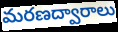
మరణద్వారాలు